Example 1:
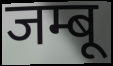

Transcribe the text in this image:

जम्बू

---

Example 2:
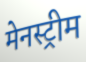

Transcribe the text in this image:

मेनस्ट्रीम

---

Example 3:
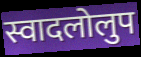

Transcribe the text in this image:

स्वादलोलुप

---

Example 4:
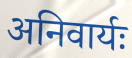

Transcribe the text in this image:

अनिवार्यः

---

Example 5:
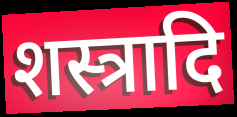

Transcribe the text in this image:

शस्त्रादि